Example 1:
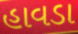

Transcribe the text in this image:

હાવડા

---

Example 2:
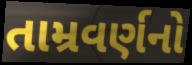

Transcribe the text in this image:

તામ્રવર્ણનો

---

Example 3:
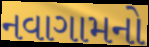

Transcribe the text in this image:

નવાગામનો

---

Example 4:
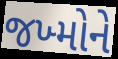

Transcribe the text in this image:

જખ્મોને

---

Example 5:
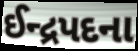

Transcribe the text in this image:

ઈન્દ્રપદના